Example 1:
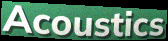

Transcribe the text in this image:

Acoustics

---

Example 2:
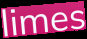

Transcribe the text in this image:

limes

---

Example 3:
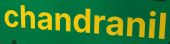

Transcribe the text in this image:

chandranil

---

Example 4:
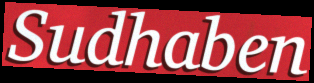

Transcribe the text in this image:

Sudhaben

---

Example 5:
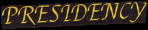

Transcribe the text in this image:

PRESIDENCY